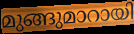
മുങ്ങുമാറായി